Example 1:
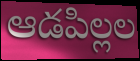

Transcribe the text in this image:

ఆడపిల్లల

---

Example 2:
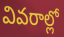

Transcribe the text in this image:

వివరాల్లో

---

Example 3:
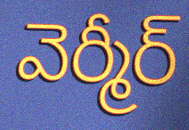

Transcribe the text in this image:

వెర్మీర్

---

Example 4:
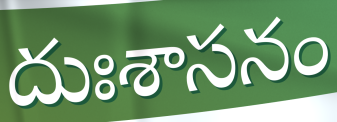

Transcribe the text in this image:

దుఃశాసనం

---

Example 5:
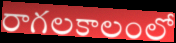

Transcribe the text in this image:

రాగలకాలంలో